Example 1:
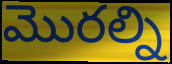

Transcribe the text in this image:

మొరల్ని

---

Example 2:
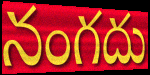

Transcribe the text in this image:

నంగదు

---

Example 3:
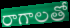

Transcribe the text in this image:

రాగాలతో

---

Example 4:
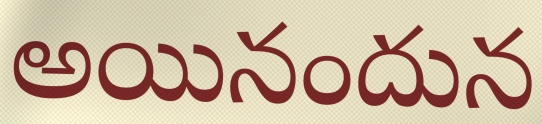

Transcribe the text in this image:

అయినందున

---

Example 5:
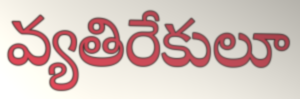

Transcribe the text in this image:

వ్యతిరేకులూ